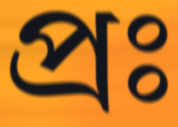
প্ৰঃ